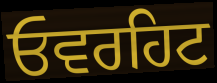
ਓਵਰਹਿਟ